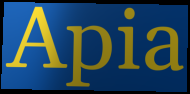
Apia